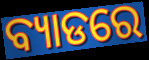
ବ୍ୟାଡରେ